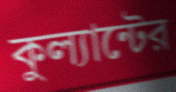
কুল্যান্টের